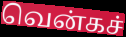
வென்கச்